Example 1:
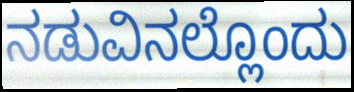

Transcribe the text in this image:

ನಡುವಿನಲ್ಲೊಂದು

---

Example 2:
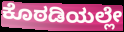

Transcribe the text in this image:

ಕೊಠಡಿಯಲ್ಲೇ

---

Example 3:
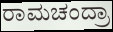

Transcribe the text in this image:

ರಾಮಚಂದ್ರಾ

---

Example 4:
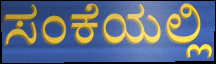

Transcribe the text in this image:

ಸಂಕೆಯಲ್ಲಿ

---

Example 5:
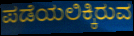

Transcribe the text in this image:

ಪಡೆಯಲಿಕ್ಕಿರುವ